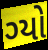
ગ્યો